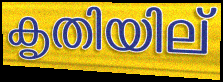
കൃതിയില്